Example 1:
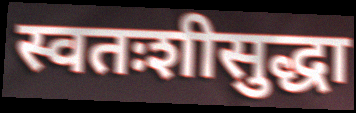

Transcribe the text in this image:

स्वतःशीसुद्धा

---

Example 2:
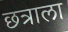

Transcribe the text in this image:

छत्राला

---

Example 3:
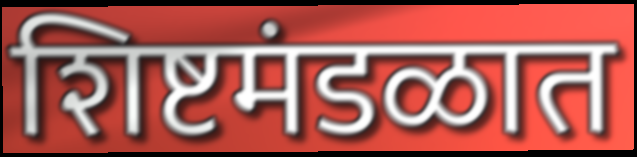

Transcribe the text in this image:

शिष्टमंडळात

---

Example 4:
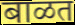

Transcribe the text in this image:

बाळत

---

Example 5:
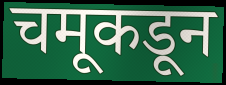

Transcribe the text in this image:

चमूकडून